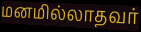
மனமில்லாதவர்